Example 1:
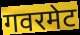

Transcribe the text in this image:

गवरमेट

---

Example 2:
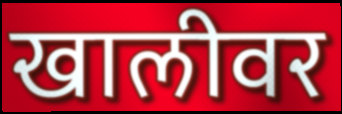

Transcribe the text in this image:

खालीवर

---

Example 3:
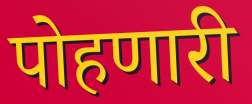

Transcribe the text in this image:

पोहणारी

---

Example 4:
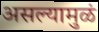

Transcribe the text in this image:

असल्यामुळं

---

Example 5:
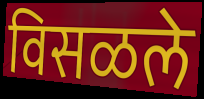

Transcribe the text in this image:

विसळले